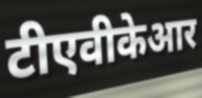
टीएवीकेआर